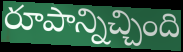
రూపాన్నిచ్చింది